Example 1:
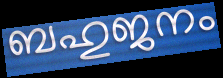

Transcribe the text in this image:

ബഹുജനം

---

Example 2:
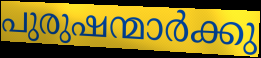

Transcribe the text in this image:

പുരുഷന്മാർക്കു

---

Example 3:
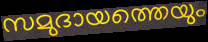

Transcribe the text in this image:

സമുദായത്തെയും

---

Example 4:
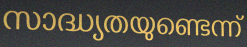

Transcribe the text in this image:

സാദ്ധ്യതയുണ്ടെന്ന്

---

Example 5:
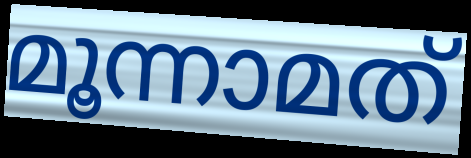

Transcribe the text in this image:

മൂന്നാമത്